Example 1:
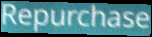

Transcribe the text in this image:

Repurchase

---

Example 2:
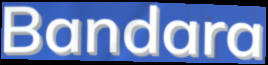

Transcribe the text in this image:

Bandara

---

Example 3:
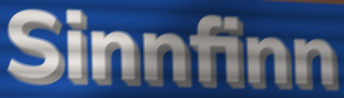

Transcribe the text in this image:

Sinnfinn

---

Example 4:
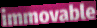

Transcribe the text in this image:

immovable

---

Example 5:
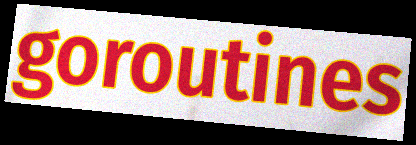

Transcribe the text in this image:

goroutines